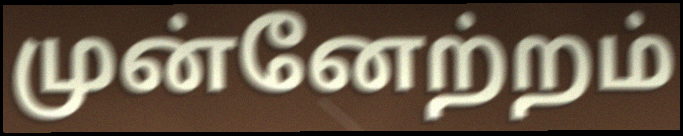
முன்னேற்றம்